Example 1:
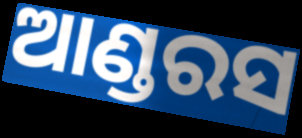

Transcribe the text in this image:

ଆଣ୍ଡରସ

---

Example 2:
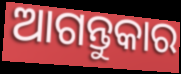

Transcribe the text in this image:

ଆଗନ୍ତୁକାର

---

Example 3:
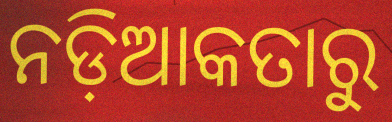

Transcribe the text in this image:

ନଡ଼ିଆକତାରୁ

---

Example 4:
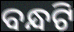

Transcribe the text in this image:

ବନ୍ଧଟି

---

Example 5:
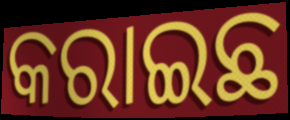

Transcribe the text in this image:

କରାଇଛ